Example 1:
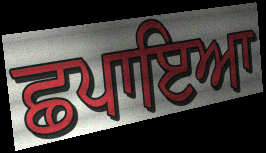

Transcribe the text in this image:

ਛਪਾਇਆ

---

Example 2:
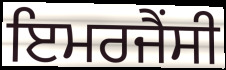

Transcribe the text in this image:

ਇਮਰਜੈਂਸੀ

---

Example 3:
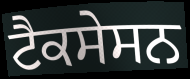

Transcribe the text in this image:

ਟੈਕਸੇਸਨ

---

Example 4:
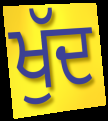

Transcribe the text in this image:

ਖੁੱਦ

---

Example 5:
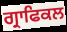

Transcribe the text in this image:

ਗ੍ਰਾਫਿਕਲ